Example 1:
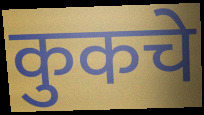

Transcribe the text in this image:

कुकचे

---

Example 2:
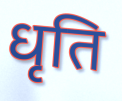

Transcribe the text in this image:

धृति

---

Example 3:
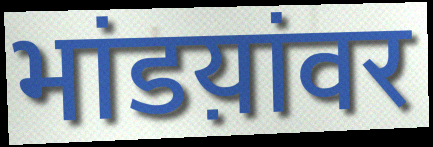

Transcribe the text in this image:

भांडय़ांवर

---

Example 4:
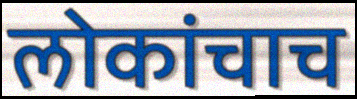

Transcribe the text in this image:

लोकांचाच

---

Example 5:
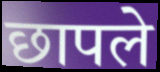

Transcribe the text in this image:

छापले